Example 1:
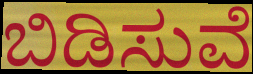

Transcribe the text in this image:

ಬಿಡಿಸುವೆ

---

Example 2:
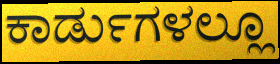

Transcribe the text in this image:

ಕಾರ್ಡುಗಳಲ್ಲೂ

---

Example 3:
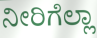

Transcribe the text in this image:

ನೀರಿಗೆಲ್ಲಾ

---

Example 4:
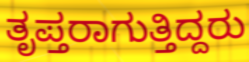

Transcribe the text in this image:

ತೃಪ್ತರಾಗುತ್ತಿದ್ದರು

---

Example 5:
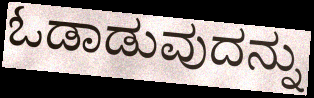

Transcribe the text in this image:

ಓಡಾಡುವುದನ್ನು